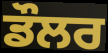
ਡੌਲਰ